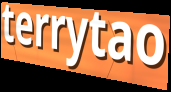
terrytao